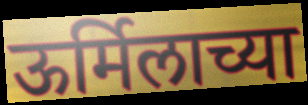
ऊर्मिलाच्या